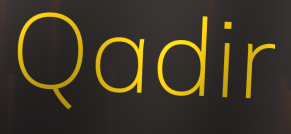
Qadir